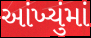
આંખ્યુંમાં